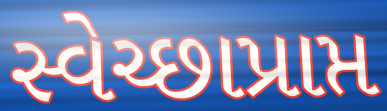
સ્વેચ્છાપ્રાપ્ત